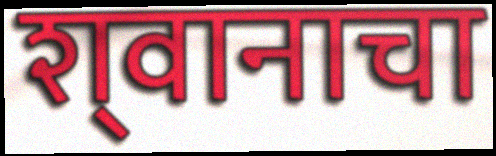
श्वानाचा